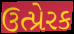
ઉત્પ્રેરક